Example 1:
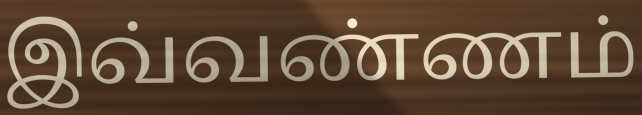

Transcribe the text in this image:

இவ்வண்ணம்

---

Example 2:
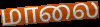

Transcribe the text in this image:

மாலை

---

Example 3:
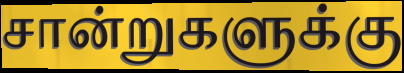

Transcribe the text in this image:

சான்றுகளுக்கு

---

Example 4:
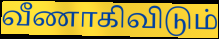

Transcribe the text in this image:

வீணாகிவிடும்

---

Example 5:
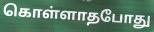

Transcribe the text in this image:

கொள்ளாதபோது